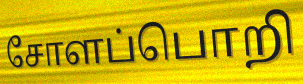
சோளப்பொறி